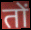
तों